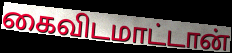
கைவிடமாட்டான்